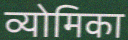
व्योमिका